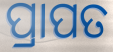
ପ୍ରାପତ